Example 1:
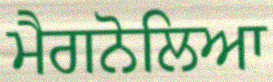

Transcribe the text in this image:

ਮੈਗਨੋਲਿਆ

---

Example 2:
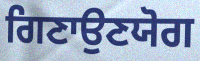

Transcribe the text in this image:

ਗਿਣਾਉਣਯੋਗ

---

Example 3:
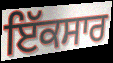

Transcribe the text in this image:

ਇੱਕਸਾਰ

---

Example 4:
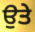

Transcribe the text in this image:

ਉਤੇ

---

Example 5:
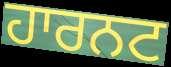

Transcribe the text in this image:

ਹਾਰਨਟ